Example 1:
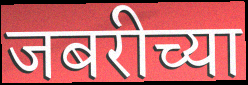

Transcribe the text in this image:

जबरीच्या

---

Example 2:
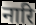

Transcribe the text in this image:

नारि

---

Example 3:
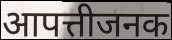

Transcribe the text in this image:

आपत्तीजनक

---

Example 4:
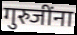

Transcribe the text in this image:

गुरुजींना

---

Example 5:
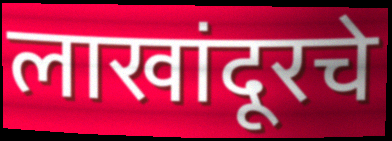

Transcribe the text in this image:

लाखांदूरचे